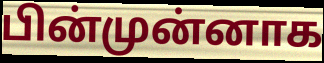
பின்முன்னாக